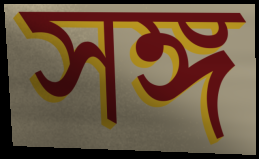
সঙ্গ